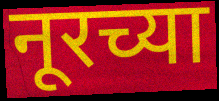
नूरच्या